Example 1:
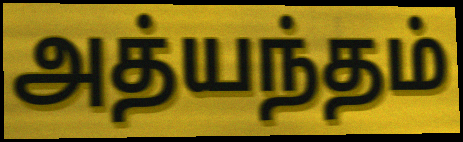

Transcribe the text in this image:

அத்யந்தம்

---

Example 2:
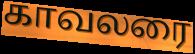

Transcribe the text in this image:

காவலரை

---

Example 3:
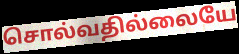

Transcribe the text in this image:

சொல்வதில்லையே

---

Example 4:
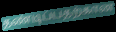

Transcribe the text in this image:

தண்டிப்பதற்கான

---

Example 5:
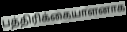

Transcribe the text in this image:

பத்திரிக்கையாளனாக